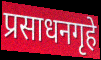
प्रसाधनगृहे